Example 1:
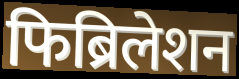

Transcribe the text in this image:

फिब्रिलेशन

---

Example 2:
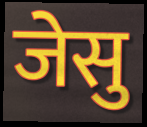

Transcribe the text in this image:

जेसु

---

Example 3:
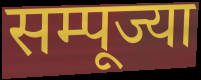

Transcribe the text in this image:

सम्पूज्या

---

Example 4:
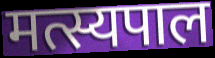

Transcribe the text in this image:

मत्स्यपाल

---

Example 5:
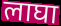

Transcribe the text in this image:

लाघा